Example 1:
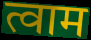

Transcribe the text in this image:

त्वाम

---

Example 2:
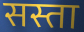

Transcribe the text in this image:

सस्ता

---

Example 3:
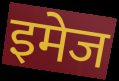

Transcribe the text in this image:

इमेज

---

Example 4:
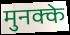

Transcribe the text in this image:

मुनक्के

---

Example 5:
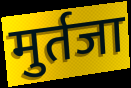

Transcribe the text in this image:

मुर्तजा